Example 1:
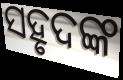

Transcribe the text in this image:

ସହୃଦଙ୍କ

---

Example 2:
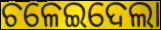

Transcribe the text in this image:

ଚଳେଇଦେଲା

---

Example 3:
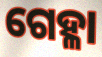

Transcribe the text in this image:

ଗେହ୍ଳା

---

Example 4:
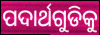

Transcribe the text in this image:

ପଦାର୍ଥଗୁଡିକୁ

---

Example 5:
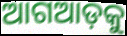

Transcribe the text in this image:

ଆଗଆଡ଼କୁ